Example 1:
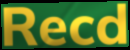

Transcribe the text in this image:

Recd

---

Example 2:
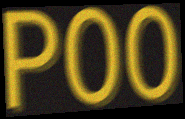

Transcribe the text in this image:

POO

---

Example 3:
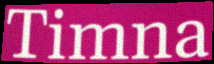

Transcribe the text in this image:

Timna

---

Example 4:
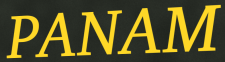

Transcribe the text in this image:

PANAM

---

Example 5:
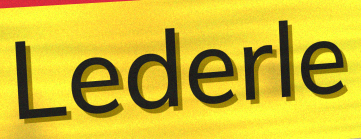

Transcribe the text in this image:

Lederle